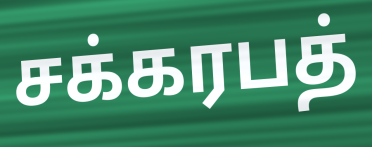
சக்கரபத்